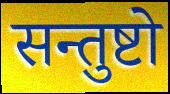
सन्तुष्टो